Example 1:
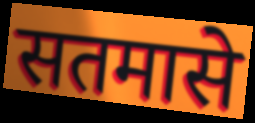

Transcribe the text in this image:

सतमासे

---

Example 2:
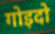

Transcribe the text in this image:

गोइदो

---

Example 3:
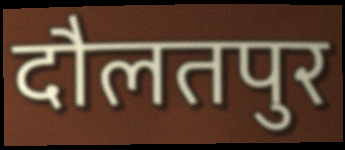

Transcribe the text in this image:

दौलतपुर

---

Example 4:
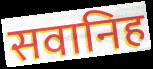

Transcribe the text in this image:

सवानिह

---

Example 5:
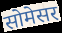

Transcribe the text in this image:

सोमेसर